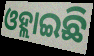
ଓହ୍ଲାଇଛି